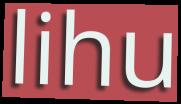
lihu